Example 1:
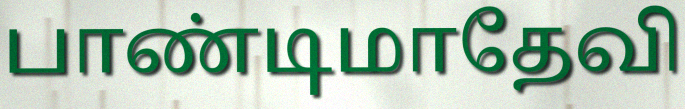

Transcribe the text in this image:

பாண்டிமாதேவி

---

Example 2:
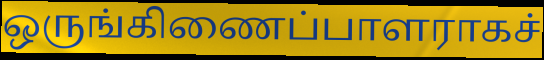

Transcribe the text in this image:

ஒருங்கிணைப்பாளராகச்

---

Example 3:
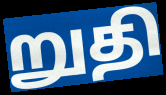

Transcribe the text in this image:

றுதி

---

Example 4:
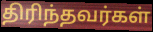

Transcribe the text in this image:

திரிந்தவர்கள்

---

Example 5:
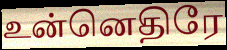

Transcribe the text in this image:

உன்னெதிரே